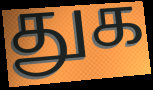
துக